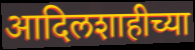
आदिलशाहीच्या